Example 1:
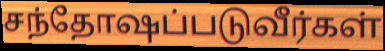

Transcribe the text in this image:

சந்தோஷப்படுவீர்கள்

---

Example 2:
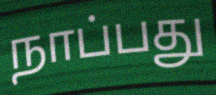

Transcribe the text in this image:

நாப்பது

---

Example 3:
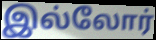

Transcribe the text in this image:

இல்லோர்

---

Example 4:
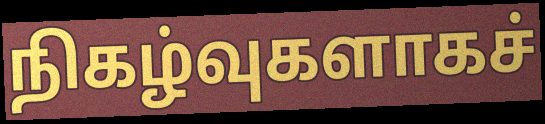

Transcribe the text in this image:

நிகழ்வுகளாகச்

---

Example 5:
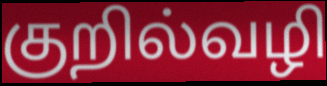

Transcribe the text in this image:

குறில்வழி